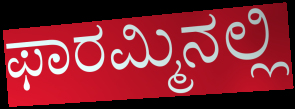
ಫಾರಮ್ಮಿನಲ್ಲಿ